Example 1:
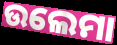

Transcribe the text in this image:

ଉଲେମା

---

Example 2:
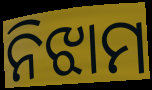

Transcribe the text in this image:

ନିଝାମ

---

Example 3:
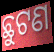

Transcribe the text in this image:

ଛୁଟଣ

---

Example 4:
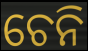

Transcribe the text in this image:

ଚେନି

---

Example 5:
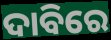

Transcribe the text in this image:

ଦାବିରେ